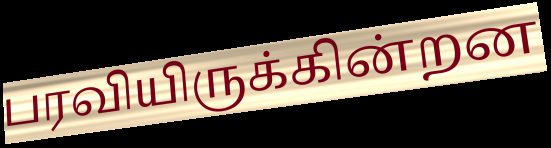
பரவியிருக்கின்றன